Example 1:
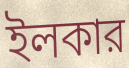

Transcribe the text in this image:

ইলকার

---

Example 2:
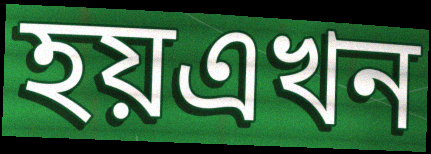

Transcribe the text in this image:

হয়এখন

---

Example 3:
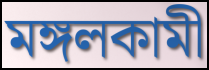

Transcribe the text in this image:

মঙ্গলকামী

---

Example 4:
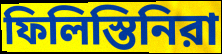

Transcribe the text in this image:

ফিলিস্তিনিরা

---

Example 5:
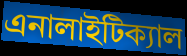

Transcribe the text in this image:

এনালাইটিক্যাল